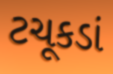
ટચૂકડાં